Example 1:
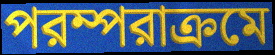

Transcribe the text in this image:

পরম্পরাক্রমে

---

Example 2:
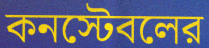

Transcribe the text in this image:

কনস্টেবলের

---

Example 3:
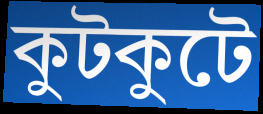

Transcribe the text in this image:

কুটকুটে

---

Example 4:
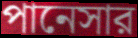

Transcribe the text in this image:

পানেসার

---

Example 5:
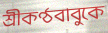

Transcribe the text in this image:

শ্রীকণ্ঠবাবুকে